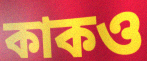
কাকও